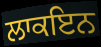
ਲਾਕਇਨ